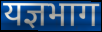
यज्ञभाग